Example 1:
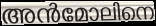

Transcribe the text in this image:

അൻമോലിനെ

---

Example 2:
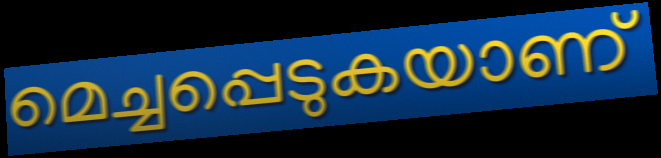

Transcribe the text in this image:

മെച്ചപ്പെടുകയാണ്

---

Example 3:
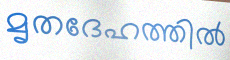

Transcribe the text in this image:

മൃതദേഹത്തിൽ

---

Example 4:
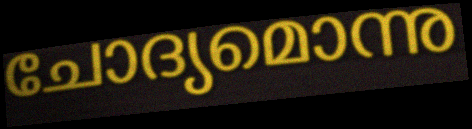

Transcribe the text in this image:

ചോദ്യമൊന്നു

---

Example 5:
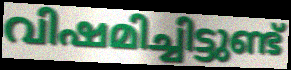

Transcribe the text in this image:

വിഷമിച്ചിട്ടുണ്ട്